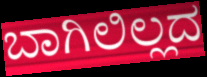
ಬಾಗಿಲಿಲ್ಲದ